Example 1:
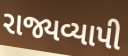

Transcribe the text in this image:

રાજ્યવ્યાપી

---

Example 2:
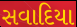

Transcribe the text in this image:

સવાદિયા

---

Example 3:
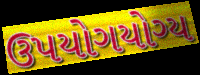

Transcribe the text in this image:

ઉપયોગયોગ્ય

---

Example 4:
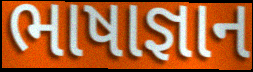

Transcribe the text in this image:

ભાષાજ્ઞાન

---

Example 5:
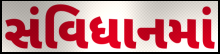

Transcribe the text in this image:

સંવિધાનમાં